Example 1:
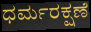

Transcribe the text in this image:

ಧರ್ಮರಕ್ಷಣೆ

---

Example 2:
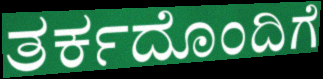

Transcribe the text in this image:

ತರ್ಕದೊಂದಿಗೆ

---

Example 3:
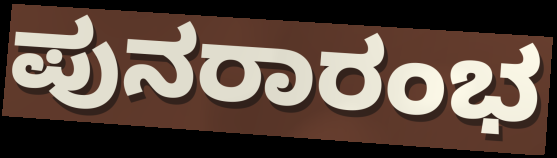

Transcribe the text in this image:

ಪುನರಾರಂಭ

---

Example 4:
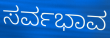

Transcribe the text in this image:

ಸರ್ವಭಾವ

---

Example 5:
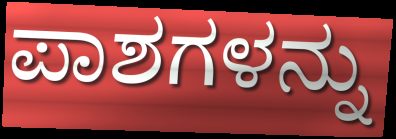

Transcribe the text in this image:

ಪಾಶಗಳನ್ನು